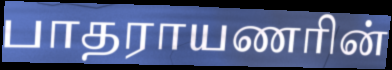
பாதராயணரின்